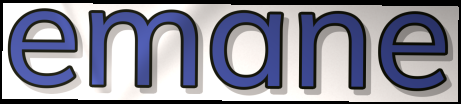
emane